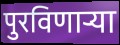
पुरविणाऱ्या